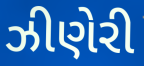
ઝીણેરી